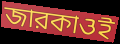
জারকাওই